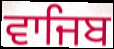
ਵਾਜਿਬ